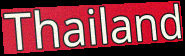
Thailand